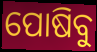
ପୋଷିବୁ